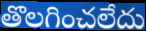
తొలగించలేదు